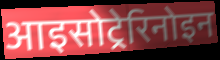
आइसोट्रेरिनोइन